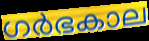
ഗർഭകാല